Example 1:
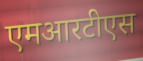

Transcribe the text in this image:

एमआरटीएस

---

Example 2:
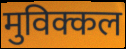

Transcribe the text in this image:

मुविक्कल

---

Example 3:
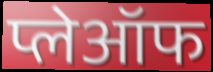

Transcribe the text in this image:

प्‍लेऑफ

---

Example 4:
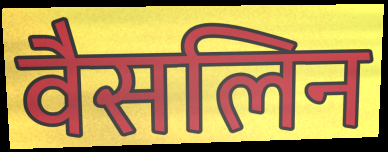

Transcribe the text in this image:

वैसलिन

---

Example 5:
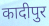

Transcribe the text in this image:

कादीपुर